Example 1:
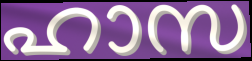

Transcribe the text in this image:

ഹാസ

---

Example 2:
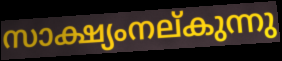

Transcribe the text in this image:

സാക്ഷ്യംനല്കുന്നു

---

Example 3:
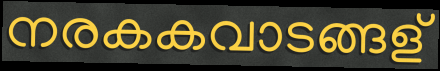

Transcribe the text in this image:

നരകകവാടങ്ങള്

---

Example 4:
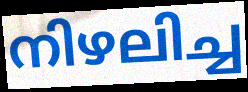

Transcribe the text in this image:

നിഴലിച്ച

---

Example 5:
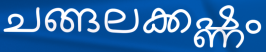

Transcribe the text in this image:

ചങ്ങലക്കഷ്ണം